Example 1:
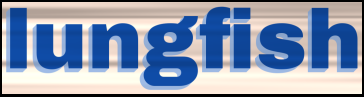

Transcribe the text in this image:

lungfish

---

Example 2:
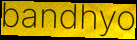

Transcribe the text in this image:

bandhyo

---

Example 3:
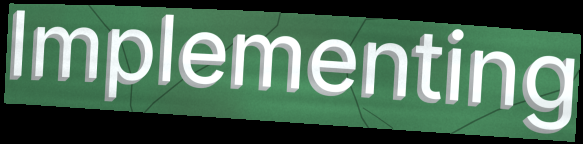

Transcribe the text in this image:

Implementing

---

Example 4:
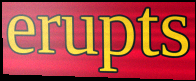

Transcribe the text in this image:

erupts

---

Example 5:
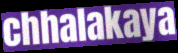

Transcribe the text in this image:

chhalakaya